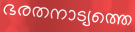
ഭരതനാട്യത്തെ